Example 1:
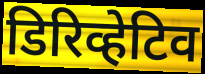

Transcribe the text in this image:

डिरिव्हेटिव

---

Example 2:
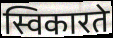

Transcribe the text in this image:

स्विकारते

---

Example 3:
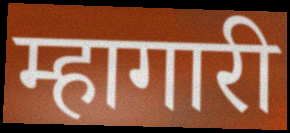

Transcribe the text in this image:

म्हागारी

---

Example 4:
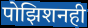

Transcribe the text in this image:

पोझिशनही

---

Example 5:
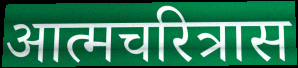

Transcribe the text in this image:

आत्मचरित्रास